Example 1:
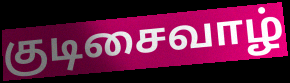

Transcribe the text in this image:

குடிசைவாழ்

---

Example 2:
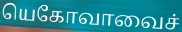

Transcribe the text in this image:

யெகோவாவைச்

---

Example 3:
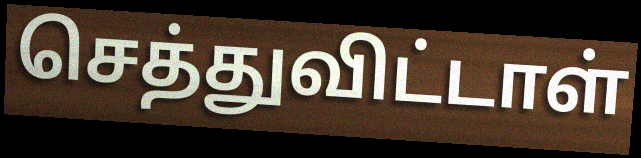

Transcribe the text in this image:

செத்துவிட்டாள்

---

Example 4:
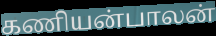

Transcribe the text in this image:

கணியன்பாலன்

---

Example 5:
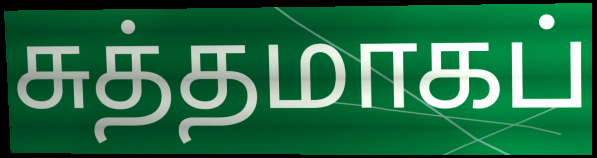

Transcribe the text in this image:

சுத்தமாகப்